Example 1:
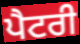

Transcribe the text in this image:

ਪੈਟਰੀ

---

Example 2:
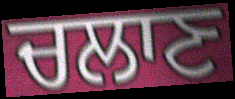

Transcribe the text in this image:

ਚਲਾਣ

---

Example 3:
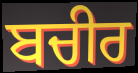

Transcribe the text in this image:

ਬਚੀਰ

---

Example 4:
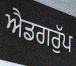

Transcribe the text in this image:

ਐਡਗਰੁੱਪ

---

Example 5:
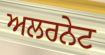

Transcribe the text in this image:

ਅਲਰਨੇਟ